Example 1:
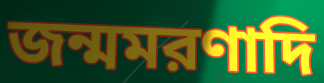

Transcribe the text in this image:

জন্মমরণাদি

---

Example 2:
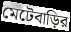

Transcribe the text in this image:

মেটেবাড়ির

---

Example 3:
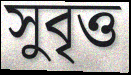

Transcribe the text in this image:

সুবৃত্ত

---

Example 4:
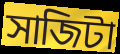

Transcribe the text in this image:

সাজিটা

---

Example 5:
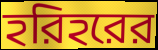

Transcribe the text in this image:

হরিহরের